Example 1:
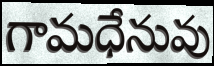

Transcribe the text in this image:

గామధేనువు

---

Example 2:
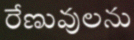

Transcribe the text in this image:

రేణువులను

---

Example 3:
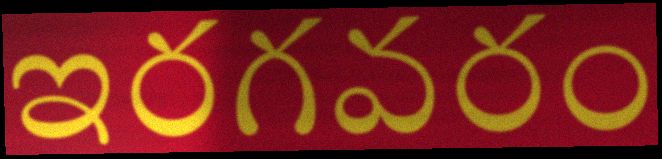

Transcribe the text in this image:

ఇరగవరం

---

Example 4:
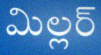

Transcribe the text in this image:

మిల్లర్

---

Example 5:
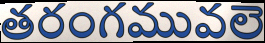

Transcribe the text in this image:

తరంగమువలె